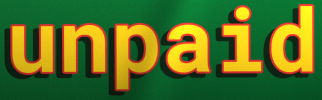
unpaid